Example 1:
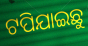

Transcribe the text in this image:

ଟପିଯାଇଛୁ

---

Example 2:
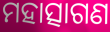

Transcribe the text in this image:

ମହାତ୍ସାଗଣ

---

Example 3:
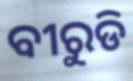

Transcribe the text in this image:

ବୀରୁଡି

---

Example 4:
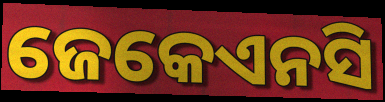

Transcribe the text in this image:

ଜେକେଏନସି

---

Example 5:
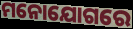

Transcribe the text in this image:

ମନୋଯୋଗରେ